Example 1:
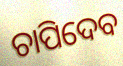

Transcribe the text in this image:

ଚାପିଦେବ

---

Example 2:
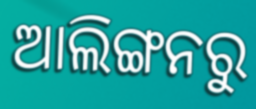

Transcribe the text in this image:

ଆଲିଙ୍ଗନରୁ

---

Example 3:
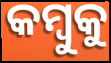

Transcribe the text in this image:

କମ୍ବୁକୁ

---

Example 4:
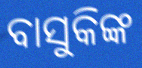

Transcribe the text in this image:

ବାସୁକିଙ୍କ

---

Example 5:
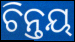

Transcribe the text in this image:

ଚିନ୍ତୟ